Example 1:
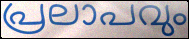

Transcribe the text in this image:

പ്രലാപവും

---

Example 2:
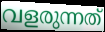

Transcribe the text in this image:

വളരുന്നത്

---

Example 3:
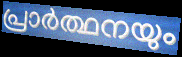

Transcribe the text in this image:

പ്രാർത്ഥനയും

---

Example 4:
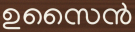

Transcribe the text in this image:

ഉസൈൻ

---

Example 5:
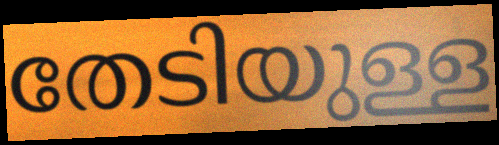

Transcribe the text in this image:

തേടിയുള്ള